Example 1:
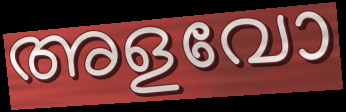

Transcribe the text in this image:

അളവോ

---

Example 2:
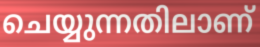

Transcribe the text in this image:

ചെയ്യുന്നതിലാണ്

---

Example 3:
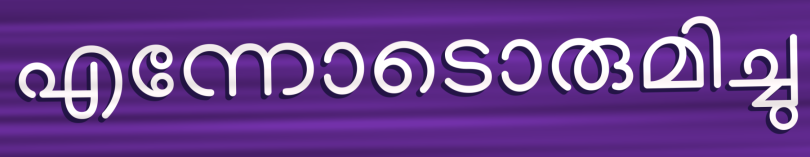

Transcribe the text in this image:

എന്നോടൊരുമിച്ചു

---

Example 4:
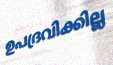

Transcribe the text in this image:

ഉപദ്രവിക്കില്ല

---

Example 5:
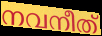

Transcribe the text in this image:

നവനീത്